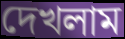
দেখলাম